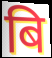
बि